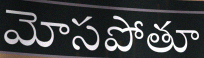
మోసపోతూ